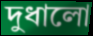
দুধালো